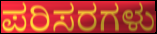
ಪರಿಸರಗಳು